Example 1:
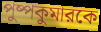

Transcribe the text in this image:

পুষ্পকুমারকে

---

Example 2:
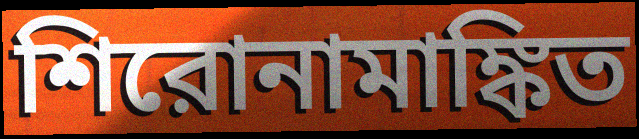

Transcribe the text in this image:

শিরোনামাঙ্কিত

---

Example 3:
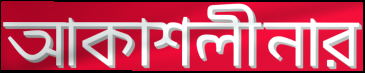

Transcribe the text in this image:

আকাশলীনার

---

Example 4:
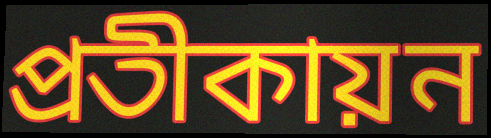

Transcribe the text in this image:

প্রতীকায়ন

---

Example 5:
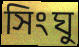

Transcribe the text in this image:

সিংঘু